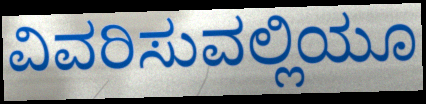
ವಿವರಿಸುವಲ್ಲಿಯೂ